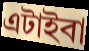
এটাইবা